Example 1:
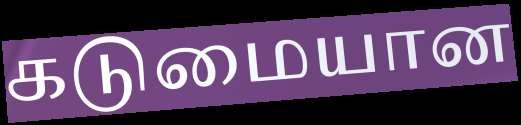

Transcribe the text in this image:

கடுமையான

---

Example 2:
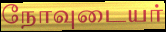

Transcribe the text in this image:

நோவுடையர்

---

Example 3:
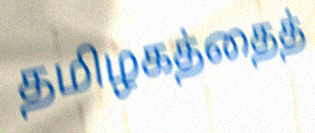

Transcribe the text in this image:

தமிழகத்தைத்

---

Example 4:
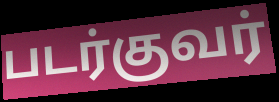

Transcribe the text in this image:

படர்குவர்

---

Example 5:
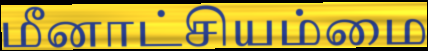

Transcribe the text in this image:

மீனாட்சியம்மை